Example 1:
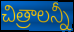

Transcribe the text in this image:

చిత్రాలన్నీ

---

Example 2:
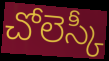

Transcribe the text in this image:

చోలెస్కీ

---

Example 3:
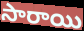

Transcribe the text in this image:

సారాయి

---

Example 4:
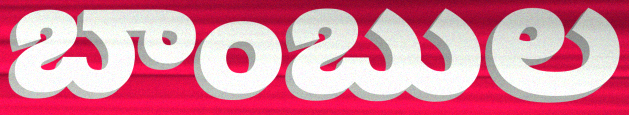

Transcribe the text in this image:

బాంబుల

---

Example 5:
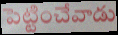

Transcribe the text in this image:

పెట్టించేవాడు